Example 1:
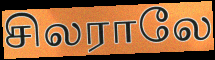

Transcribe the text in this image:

சிலராலே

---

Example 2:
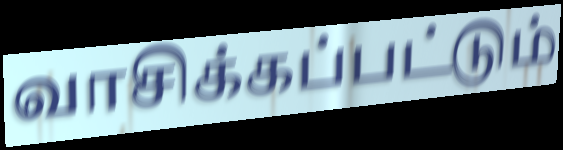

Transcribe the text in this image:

வாசிக்கப்பட்டும்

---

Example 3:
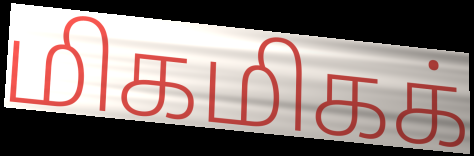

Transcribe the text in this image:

மிகமிகக்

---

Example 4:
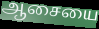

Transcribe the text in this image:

ஆசையை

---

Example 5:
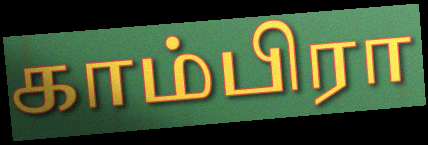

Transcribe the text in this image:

காம்பிரா